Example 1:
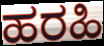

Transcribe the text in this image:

ಹರಹಿ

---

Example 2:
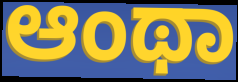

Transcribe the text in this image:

ಆಂಥಾ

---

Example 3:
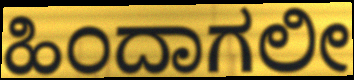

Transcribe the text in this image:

ಹಿಂದಾಗಲೀ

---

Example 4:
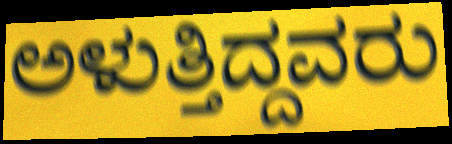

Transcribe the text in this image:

ಅಳುತ್ತಿದ್ದವರು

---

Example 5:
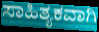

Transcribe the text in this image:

ಸಾಹಿತ್ಯಕವಾಗಿ